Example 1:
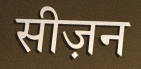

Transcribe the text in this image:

सीज़न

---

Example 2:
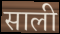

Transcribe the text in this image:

साली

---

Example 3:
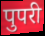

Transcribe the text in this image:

पुपरी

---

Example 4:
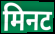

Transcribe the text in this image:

मिनट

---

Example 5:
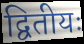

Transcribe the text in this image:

द्वितीयः